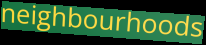
neighbourhoods